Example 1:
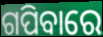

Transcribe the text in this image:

ଗପିବାରେ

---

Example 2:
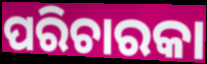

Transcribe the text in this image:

ପରିଚାରକା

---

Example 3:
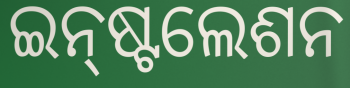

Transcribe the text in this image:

ଇନ୍‌ଷ୍ଟଲେଶନ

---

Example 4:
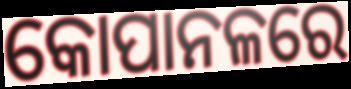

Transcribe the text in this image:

କୋପାନଳରେ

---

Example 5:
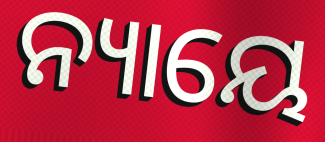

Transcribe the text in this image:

ନ୍ୟାୟେ